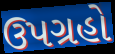
ઉપગ્રહો